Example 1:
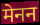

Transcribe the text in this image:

मेनन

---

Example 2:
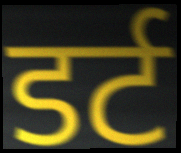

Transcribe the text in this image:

डर्ट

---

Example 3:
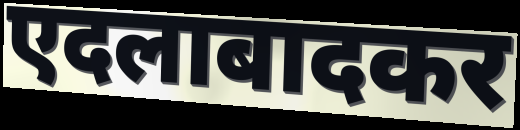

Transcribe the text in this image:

एदलाबादकर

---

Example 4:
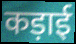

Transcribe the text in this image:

कड़ाई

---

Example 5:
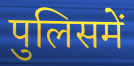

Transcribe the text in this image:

पुलिसमें